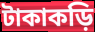
টাকাকড়ি